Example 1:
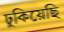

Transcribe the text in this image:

ঢুকিয়েছি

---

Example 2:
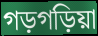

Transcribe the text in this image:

গড়গড়িয়া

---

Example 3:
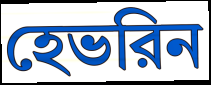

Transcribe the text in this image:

হেভরিন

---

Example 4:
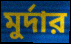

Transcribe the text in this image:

মুর্দার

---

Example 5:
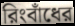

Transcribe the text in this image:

রিংবাঁধের